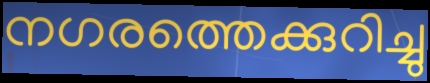
നഗരത്തെക്കുറിച്ചു